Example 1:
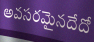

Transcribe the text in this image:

అవసరమైనదేదో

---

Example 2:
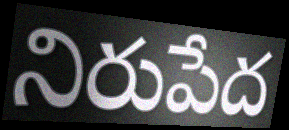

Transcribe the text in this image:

నిరుపేద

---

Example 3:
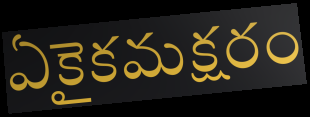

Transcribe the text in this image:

ఏకైకమక్షరం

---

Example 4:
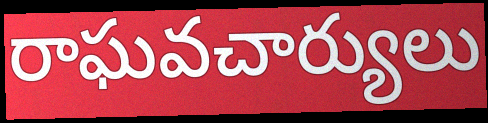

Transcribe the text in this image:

రాఘవచార్యులు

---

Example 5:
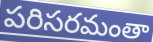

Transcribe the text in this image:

పరిసరమంతా